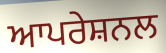
ਆਪਰੇਸ਼ਨਲ